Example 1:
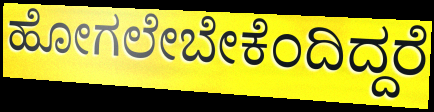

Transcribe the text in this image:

ಹೋಗಲೇಬೇಕೆಂದಿದ್ದರೆ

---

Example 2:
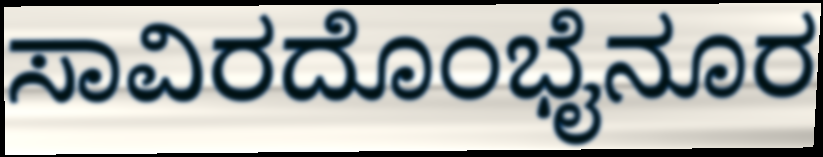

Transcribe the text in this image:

ಸಾವಿರದೊಂಭೈನೂರ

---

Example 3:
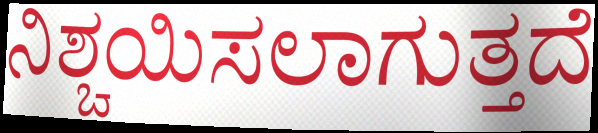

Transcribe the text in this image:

ನಿಶ್ಚಯಿಸಲಾಗುತ್ತದೆ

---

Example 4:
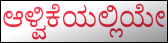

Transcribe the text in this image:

ಆಳ್ವಿಕೆಯಲ್ಲಿಯೇ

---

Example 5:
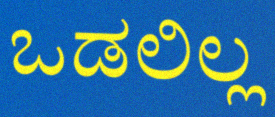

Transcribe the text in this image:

ಒಡಲಿಲ್ಲ